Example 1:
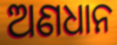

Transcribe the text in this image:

ଅଣଧାନ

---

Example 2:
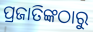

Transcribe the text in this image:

ପ୍ରଜାତିଙ୍କଠାରୁ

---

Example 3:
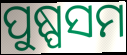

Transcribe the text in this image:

ପୁଷ୍ପସମ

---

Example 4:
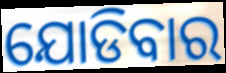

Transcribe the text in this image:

ଯୋଡିବାର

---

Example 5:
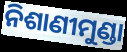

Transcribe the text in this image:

ନିଶାଣୀମୁଣ୍ଡା